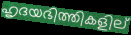
ഹൃദയഭിത്തികളില്